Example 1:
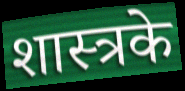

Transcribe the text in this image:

शास्त्रके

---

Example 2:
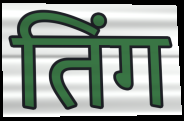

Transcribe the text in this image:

तिंग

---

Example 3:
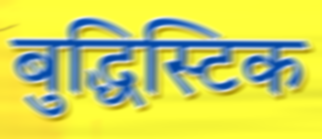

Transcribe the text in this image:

बुद्धिस्टिक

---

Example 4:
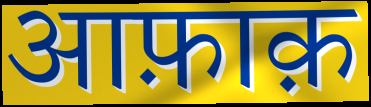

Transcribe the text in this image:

आफ़ाक़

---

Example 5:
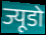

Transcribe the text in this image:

ज्यूडो